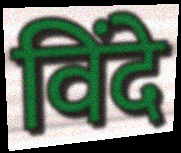
विंदे